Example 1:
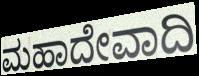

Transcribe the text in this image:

ಮಹಾದೇವಾದಿ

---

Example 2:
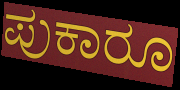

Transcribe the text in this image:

ಪುಕಾರೂ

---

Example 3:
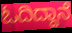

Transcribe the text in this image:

ಓದಿದ್ದಾನೆ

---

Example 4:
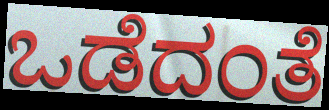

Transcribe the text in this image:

ಒಡೆದಂತೆ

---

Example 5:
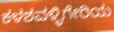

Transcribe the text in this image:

ಕಳಶವಳ್ಳಿಗೇರಿಯ